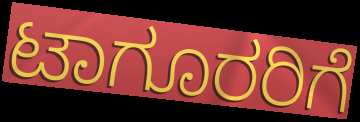
ಟಾಗೂರರಿಗೆ